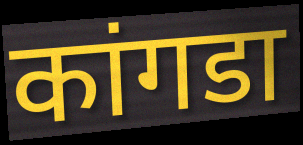
कांगडा